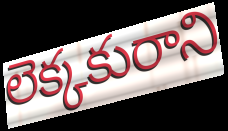
లెక్కకురాని